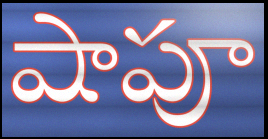
షాపూ